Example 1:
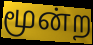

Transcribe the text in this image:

மூன்ற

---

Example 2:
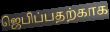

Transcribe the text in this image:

ஜெபிப்பதற்காக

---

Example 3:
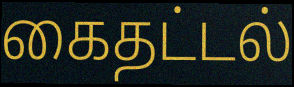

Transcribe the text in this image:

கைதட்டல்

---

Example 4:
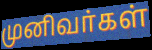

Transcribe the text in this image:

முனிவர்கள்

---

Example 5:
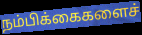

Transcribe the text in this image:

நம்பிக்கைகளைச்